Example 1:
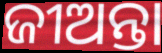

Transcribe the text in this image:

ଜୀଅନ୍ତା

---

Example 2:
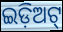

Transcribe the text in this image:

ଇଡ଼ିଅଟ୍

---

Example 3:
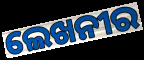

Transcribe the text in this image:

ଲେଖନୀର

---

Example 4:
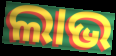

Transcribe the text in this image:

ଲାଭ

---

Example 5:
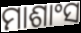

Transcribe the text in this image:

ମାଶାଂସ